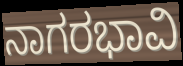
ನಾಗರಭಾವಿ